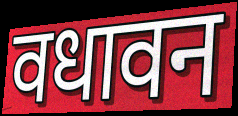
वधावन